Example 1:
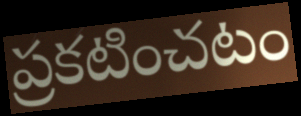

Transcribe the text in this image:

ప్రకటించటం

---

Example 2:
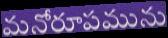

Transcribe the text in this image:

మనోరూపమును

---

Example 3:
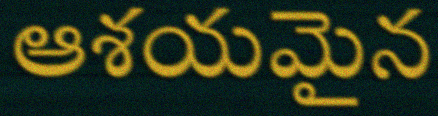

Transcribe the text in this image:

ఆశయమైన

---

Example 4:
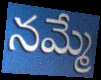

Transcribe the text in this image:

నమ్మే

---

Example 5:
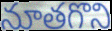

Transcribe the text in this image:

నూతగొని